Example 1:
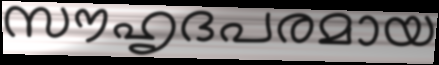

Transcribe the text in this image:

സൗഹൃദപരമായ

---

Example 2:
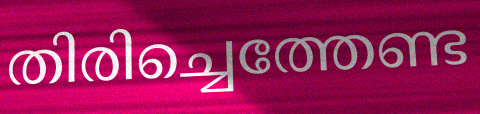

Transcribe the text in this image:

തിരിച്ചെത്തേണ്ട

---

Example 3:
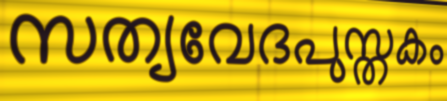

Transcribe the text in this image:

സത്യവേദപുസ്തകം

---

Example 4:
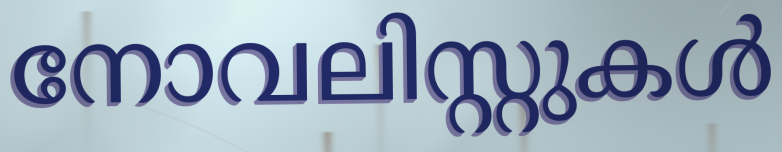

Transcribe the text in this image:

നോവലിസ്റ്റുകൾ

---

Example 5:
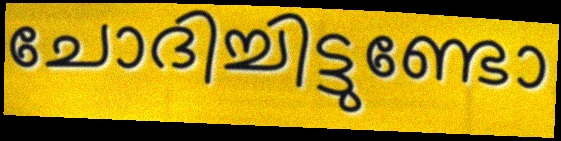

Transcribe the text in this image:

ചോദിച്ചിട്ടുണ്ടോ